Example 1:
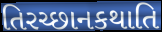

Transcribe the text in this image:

તિરચ્છાનકથાતિ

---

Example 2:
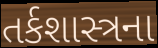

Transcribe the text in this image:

તર્કશાસ્ત્રના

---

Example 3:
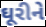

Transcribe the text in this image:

ઘૂરીને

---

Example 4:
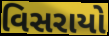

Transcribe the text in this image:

વિસરાયો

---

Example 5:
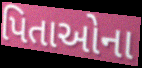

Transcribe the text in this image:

પિતાઓના